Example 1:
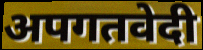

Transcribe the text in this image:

अपगतवेदी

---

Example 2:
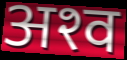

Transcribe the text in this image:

अश्व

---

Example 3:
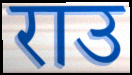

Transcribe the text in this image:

राउ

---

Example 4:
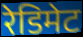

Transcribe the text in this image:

रेडिमेट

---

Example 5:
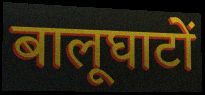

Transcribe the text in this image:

बालूघाटों